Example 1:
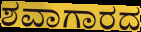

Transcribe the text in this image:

ಶವಾಗಾರದ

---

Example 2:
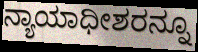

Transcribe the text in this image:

ನ್ಯಾಯಾಧೀಶರನ್ನೂ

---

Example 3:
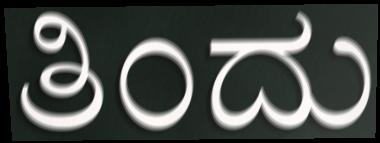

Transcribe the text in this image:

ತಿಂದು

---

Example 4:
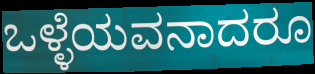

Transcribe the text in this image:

ಒಳ್ಳೆಯವನಾದರೂ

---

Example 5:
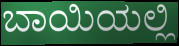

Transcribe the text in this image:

ಬಾಯಿಯಲ್ಲಿ